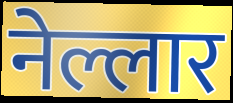
नेल्लार